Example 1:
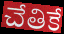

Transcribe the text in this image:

చేతికే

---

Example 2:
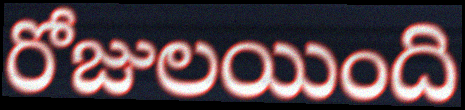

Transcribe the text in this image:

రోజులయింది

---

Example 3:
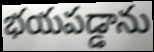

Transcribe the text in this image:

భయపడ్డాను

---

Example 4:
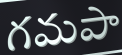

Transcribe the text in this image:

గమపా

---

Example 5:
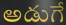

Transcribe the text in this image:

అడుగే